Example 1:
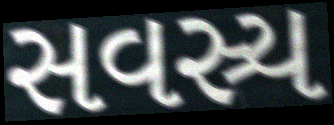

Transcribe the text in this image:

સવસ્ર્ય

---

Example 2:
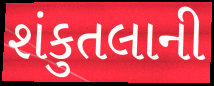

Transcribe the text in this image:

શંકુતલાની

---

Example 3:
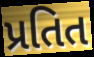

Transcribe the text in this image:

પ્રતિત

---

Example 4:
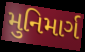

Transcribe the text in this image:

મુનિમાર્ગ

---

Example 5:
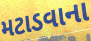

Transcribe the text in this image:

મટાડવાના